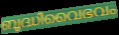
ബുദ്ധിവൈഭവം